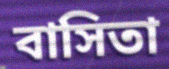
বাসিতা